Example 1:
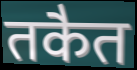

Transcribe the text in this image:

तकैत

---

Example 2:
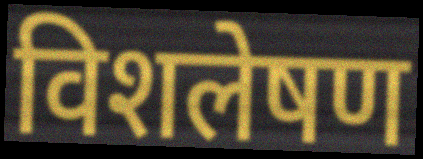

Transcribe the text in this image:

विशलेषण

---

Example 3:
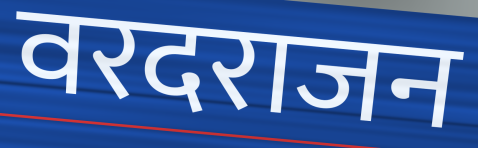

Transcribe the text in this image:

वरदराजन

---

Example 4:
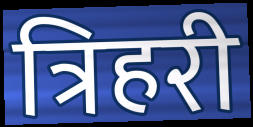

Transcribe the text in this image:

त्रिहरी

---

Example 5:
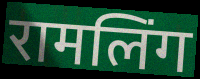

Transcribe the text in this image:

रामलिंग